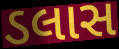
ડલાસ